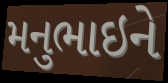
મનુભાઇને